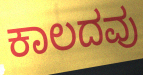
ಕಾಲದವು